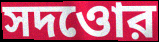
সদওোর